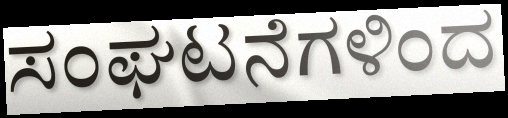
ಸಂಘಟನೆಗಳಿಂದ